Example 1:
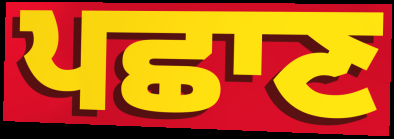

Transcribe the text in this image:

ਪਛਾਣ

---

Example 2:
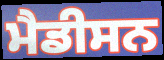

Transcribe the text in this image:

ਮੈਡੀਸਨ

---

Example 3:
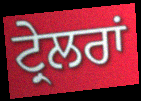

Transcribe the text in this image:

ਟ੍ਰੇਲਰਾਂ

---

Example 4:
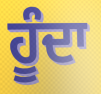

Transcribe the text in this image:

ਹੂੰਦਾ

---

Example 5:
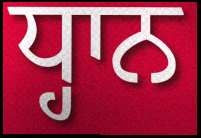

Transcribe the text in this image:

ਧ੍ਹਾਨ